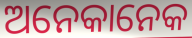
ଅନେକାନେକ